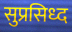
सुप्रसिध्द